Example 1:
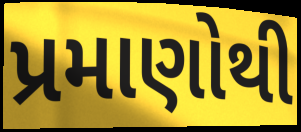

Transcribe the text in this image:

પ્રમાણોથી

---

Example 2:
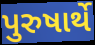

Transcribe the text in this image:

પુરુષાર્થે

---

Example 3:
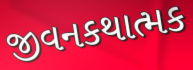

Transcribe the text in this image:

જીવનકથાત્મક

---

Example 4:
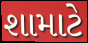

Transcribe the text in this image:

શામાટે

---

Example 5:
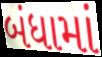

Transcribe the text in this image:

બંધામાં